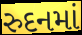
રુદનમાં